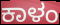
ಕಾಳಂ